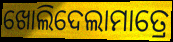
ଖୋଲିଦେଲାମାତ୍ରେ